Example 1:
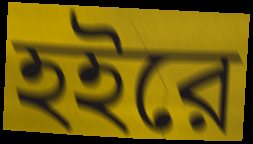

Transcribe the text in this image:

হইরে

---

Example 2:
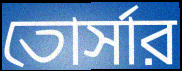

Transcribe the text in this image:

তোর্সার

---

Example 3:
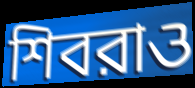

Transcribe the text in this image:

শিবরাও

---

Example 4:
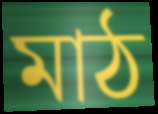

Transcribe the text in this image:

মাঠ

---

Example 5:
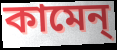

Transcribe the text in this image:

কামেন্